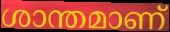
ശാന്തമാണ്